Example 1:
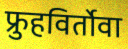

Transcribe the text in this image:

फ्रुहविर्तोवा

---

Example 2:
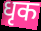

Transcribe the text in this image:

धृक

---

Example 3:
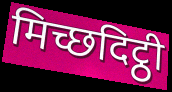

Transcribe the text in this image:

मिच्छदिट्ठी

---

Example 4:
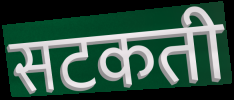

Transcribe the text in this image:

सटकती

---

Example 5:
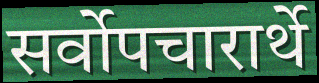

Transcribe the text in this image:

सर्वोपचारार्थे